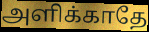
அளிக்காதே